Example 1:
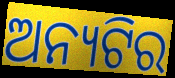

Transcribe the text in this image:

ଅନ୍ୟଟିର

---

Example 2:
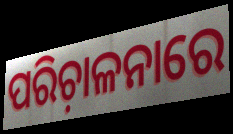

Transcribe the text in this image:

ପରିଚ଼ାଳନାରେ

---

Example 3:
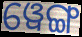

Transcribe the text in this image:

ୱେଙ୍ଗ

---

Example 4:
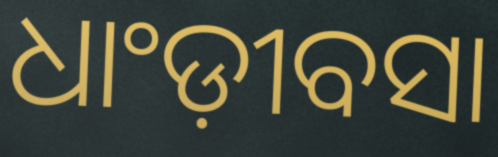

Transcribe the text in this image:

ଧାଂଡ଼ୀବସା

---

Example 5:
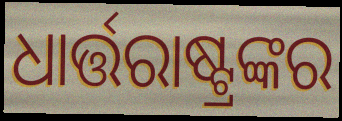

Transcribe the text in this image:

ଧାର୍ତ୍ତରାଷ୍ଟ୍ରଙ୍କର